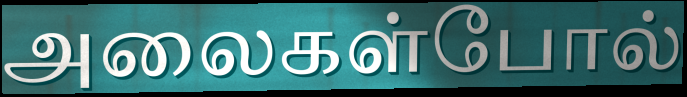
அலைகள்போல்